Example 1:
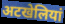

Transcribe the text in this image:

अटखेलियां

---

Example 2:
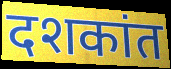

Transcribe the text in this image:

दशकांत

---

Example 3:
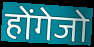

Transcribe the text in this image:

होंगेजो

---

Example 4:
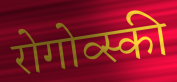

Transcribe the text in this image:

रोगोव्स्की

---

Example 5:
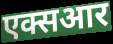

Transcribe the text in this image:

एक्सआर